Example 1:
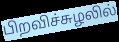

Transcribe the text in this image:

பிறவிச்சுழலில்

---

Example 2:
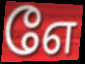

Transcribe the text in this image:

எே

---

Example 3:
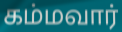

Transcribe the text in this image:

கம்மவார்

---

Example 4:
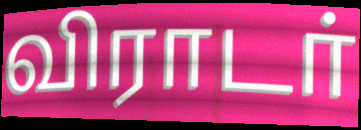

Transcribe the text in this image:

விராடர்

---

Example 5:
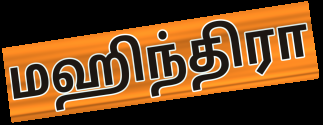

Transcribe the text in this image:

மஹிந்திரா